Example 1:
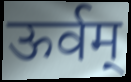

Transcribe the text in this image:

ऊर्वम्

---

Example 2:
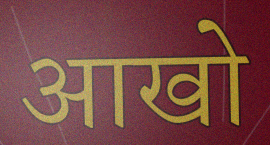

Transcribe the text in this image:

आखो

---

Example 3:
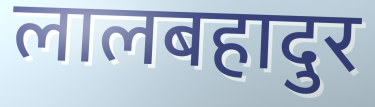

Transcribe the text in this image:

लालबहादुर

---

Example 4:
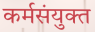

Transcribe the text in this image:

कर्मसंयुक्त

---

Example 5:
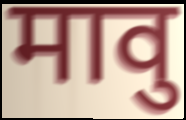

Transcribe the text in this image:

मावु